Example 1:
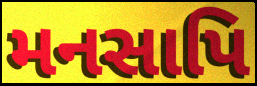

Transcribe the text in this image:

મનસાપિ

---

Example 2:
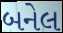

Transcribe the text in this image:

બનેલ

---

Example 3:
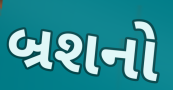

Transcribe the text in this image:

બ્રશનો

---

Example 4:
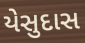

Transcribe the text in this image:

યેસુદાસ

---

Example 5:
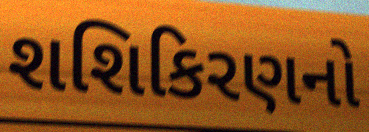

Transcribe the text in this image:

શશિકિરણનો